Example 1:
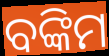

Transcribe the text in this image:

ବଙ୍କିମ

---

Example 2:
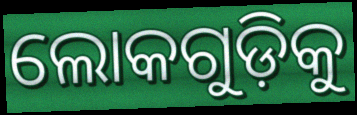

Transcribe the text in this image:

ଲୋକଗୁଡ଼ିକୁ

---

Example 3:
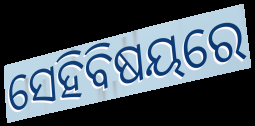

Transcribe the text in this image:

ସେହିବିଷୟରେ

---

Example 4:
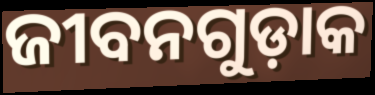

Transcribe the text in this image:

ଜୀବନଗୁଡ଼ାକ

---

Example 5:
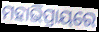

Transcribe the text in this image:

ମହାଭିପ୍ରାୟରେ